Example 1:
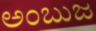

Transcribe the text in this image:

ಅಂಬುಜ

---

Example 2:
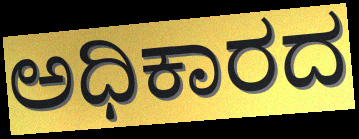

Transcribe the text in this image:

ಅಧಿಕಾರದ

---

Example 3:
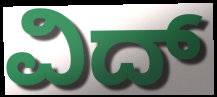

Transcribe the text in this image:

ವಿದ್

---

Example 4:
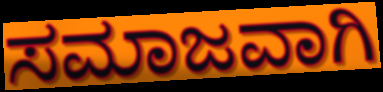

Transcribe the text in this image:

ಸಮಾಜವಾಗಿ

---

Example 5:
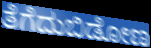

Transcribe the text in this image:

ತೆಗೆದುಬಿಡೋಣ